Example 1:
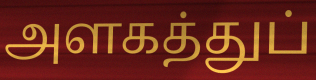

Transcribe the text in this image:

அளகத்துப்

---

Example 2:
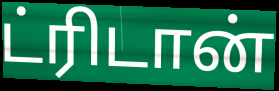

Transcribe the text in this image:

ட்ரிடான்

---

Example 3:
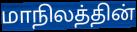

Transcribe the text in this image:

மாநிலத்தின்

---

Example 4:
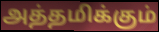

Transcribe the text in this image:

அத்தமிக்கும்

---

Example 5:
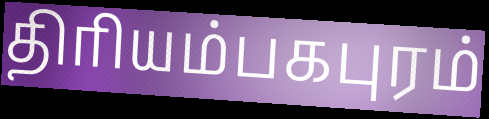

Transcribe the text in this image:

திரியம்பகபுரம்